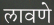
लावणे